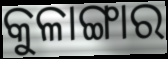
କୁଳାଙ୍ଗାର